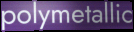
polymetallic